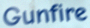
Gunfire